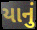
યાનું